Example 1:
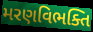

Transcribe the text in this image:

મરણવિભક્તિ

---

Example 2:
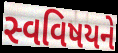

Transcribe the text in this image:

સ્વવિષયને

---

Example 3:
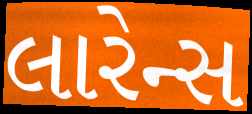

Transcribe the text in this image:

લારેન્સ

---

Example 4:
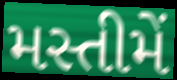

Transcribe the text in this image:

મસ્તીમેં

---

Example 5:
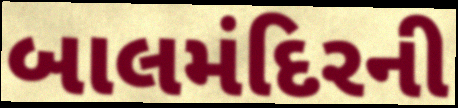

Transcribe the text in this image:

બાલમંદિરની